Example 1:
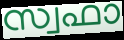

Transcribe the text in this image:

സ്വഫാ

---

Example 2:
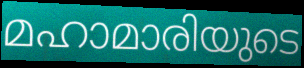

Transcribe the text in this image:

മഹാമാരിയുടെ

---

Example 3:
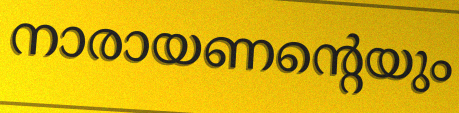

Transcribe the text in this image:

നാരായണന്റെയും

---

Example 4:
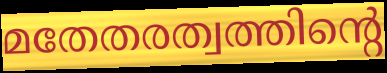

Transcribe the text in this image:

മതേതരത്വത്തിന്റെ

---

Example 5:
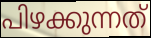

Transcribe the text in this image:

പിഴക്കുന്നത്